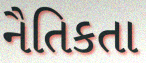
નૈતિકતા